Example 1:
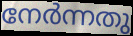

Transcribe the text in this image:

നേർന്നതു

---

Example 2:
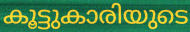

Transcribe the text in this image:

കൂട്ടുകാരിയുടെ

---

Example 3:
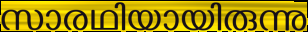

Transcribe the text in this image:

സാരഥിയായിരുന്നു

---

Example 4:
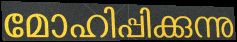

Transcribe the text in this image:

മോഹിപ്പിക്കുന്നു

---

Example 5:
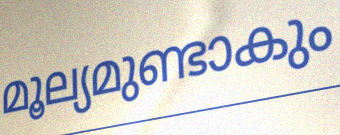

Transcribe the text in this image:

മൂല്യമുണ്ടാകും